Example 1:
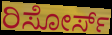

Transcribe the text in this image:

ರಿಸೋರ್ಸ್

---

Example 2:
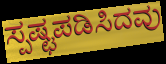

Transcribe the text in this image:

ಸ್ಪಷ್ಟಪಡಿಸಿದವು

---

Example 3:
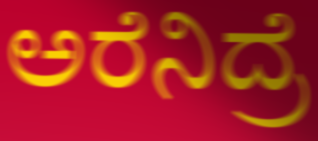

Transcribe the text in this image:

ಅರೆನಿದ್ರೆ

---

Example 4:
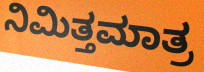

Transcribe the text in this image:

ನಿಮಿತ್ತಮಾತ್ರ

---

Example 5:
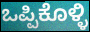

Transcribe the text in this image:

ಒಪ್ಪಿಕೊಳ್ಳಿ